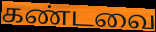
கண்டவை